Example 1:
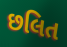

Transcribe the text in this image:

છલિત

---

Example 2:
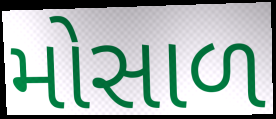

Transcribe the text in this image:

મોસાળ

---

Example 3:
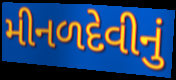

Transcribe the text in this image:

મીનળદેવીનું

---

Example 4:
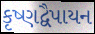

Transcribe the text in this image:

કૃષ્ણદ્વૈપાયન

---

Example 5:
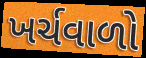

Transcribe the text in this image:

ખર્ચવાળો